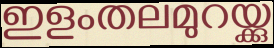
ഇളംതലമുറയ്ക്കു